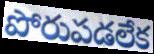
పోరుపడలేక